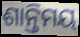
ଶାନ୍ତିମୟ